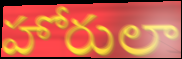
హోరులా